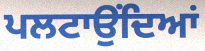
ਪਲਟਾਉਂਦਿਆਂ